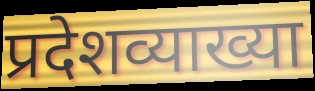
प्रदेशव्याख्या